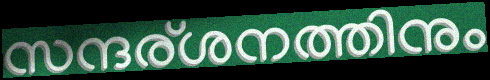
സന്ദര്ശനത്തിനും